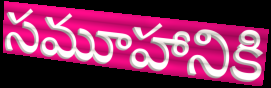
సమూహానికి